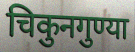
चिकुनगुण्या